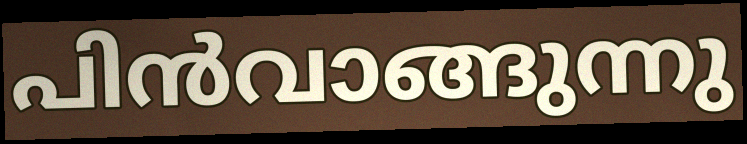
പിൻവാങ്ങുന്നു